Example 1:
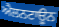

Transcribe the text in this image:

ਐਲਨਟਾਊਨ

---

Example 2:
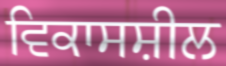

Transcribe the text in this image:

ਵਿਕਾਸਸ਼ੀਲ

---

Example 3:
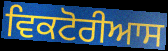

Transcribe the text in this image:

ਵਿਕਟੋਰੀਆਸ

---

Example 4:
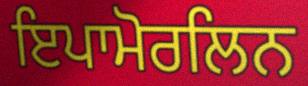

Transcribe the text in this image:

ਇਪਾਮੋਰਲਿਨ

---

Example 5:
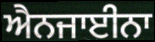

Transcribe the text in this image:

ਐਨਜਾਈਨਾ